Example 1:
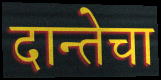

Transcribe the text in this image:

दान्तेचा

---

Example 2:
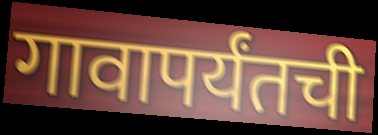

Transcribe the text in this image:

गावापर्यंतची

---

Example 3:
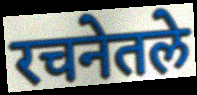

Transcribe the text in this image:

रचनेतले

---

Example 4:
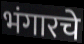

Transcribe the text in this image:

भंगारचे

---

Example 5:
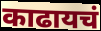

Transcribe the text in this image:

काढायचं